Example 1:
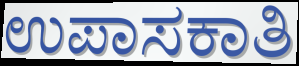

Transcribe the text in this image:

ಉಪಾಸಕಾತಿ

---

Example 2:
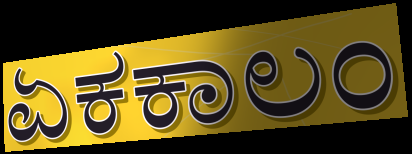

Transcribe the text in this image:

ಏಕಕಾಲಂ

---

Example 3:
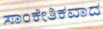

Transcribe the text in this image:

ಸಾಂಕೇತಿಕವಾದ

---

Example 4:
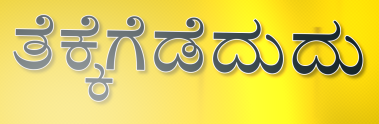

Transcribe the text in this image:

ತೆಕ್ಕೆಗೆಡೆದುದು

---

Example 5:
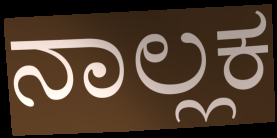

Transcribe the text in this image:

ನಾಲ್ಲಕ